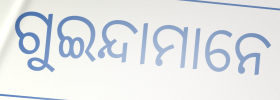
ଗୁଇନ୍ଦାମାନେ